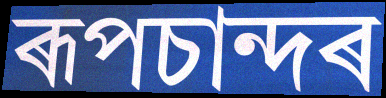
ৰূপচান্দৰ